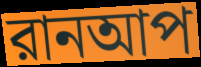
রানআপ